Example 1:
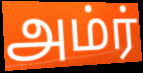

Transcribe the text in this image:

அம்ர்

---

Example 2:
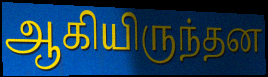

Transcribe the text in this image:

ஆகியிருந்தன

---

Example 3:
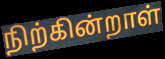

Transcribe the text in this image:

நிற்கின்றாள்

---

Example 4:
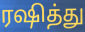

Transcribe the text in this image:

ரஷித்து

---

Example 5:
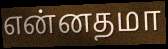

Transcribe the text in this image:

என்னதமா